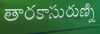
తారకాసురుణ్ని